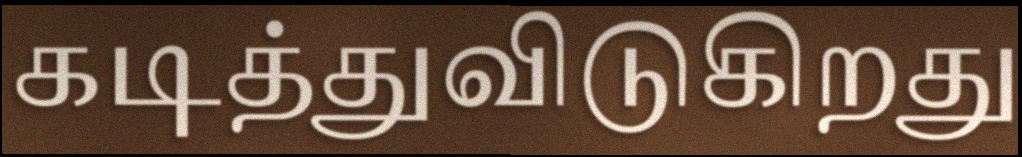
கடித்துவிடுகிறது